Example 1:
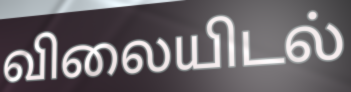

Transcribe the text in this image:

விலையிடல்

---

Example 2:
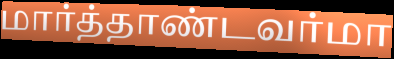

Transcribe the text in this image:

மார்த்தாண்டவர்மா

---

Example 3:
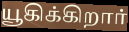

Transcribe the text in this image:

யூகிக்கிறார்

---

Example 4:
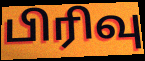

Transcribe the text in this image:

பிரிவு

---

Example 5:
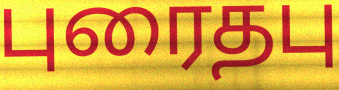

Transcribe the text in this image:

புரைதபு